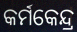
କର୍ମକେନ୍ଦ୍ର